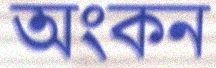
অংকন